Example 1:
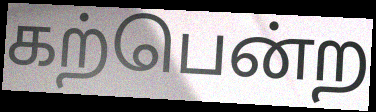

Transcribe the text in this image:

கற்பென்ற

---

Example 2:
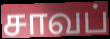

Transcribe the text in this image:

சாவப்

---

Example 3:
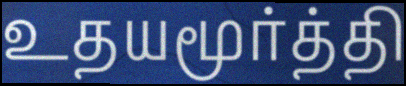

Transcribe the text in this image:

உதயமூர்த்தி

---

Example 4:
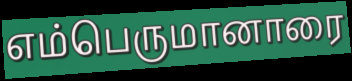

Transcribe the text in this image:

எம்பெருமானாரை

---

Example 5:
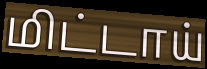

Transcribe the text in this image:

மிட்டாய்